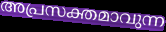
അപ്രസക്തമാവുന്ന